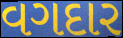
વગદાર